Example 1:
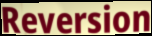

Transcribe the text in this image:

Reversion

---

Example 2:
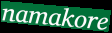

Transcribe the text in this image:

namakore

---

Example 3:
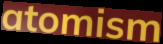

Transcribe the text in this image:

atomism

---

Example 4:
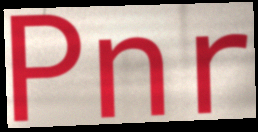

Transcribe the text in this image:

Pnr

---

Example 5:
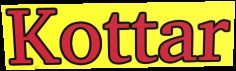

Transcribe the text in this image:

Kottar